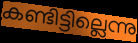
കണ്ടിട്ടില്ലെന്നു